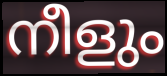
നീളും